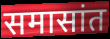
समासांत